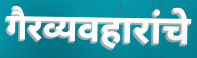
गैरव्यवहारांचे